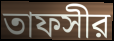
তাফসীর